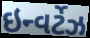
ઇન્વર્ટેઝ